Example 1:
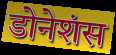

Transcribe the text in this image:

डोनेशंस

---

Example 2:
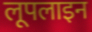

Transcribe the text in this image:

लूपलाइन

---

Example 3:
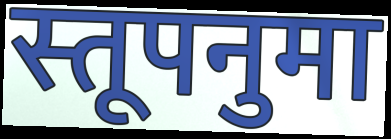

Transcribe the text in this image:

स्तूपनुमा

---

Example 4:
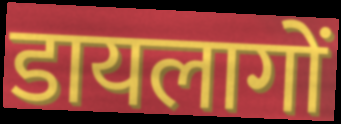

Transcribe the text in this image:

डायलागों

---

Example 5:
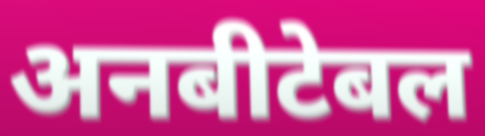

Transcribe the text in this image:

अनबीटेबल